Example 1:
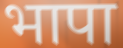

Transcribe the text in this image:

भापा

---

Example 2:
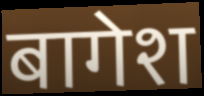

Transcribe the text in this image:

बागेश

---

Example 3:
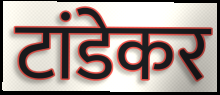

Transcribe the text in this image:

टांडेकर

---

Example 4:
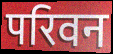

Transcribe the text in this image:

परिवन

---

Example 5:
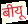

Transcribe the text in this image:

बीयू